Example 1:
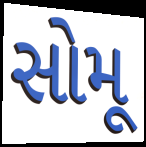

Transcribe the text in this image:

સોમૂ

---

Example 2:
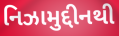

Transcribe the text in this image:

નિઝામુદ્દીનથી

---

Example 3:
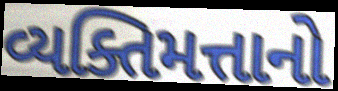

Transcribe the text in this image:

વ્યક્તિમત્તાનો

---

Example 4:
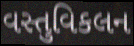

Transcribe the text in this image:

વસ્તુવિકલન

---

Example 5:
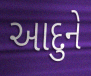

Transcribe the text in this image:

આદુને